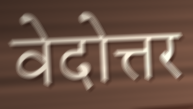
वेदोत्तर